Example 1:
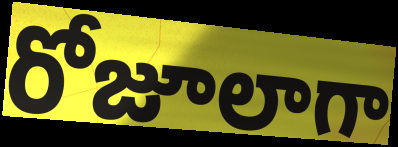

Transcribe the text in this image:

రోజూలాగా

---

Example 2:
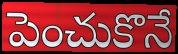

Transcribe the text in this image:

పెంచుకొనే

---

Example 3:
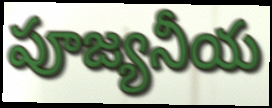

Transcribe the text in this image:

పూజ్యనీయ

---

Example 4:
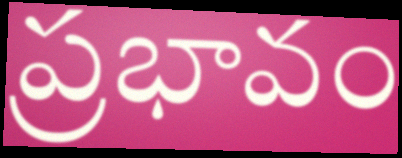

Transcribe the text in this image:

ప్రభావం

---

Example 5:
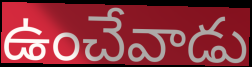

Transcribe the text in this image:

ఉంచేవాడు